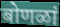
बोणळां